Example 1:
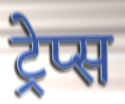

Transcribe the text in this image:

ट्रेप्स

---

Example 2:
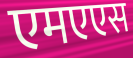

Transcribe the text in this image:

एमएएस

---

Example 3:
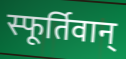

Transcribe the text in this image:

स्फूर्तिवान्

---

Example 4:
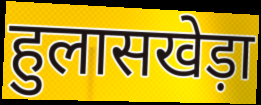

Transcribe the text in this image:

हुलासखेड़ा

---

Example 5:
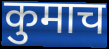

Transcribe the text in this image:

कुमाच